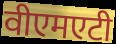
वीएमएटी